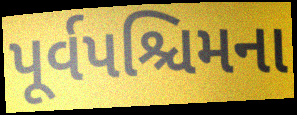
પૂર્વપશ્ચિમના